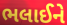
ભલાઈને